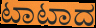
ಟಾಟಾದ